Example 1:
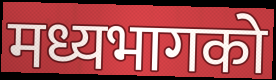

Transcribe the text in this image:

मध्यभागको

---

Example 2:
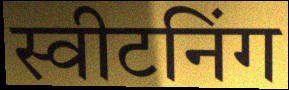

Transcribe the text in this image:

स्वीटनिंग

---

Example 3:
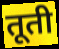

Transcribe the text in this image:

तूती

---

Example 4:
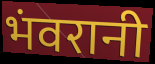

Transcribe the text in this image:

भंवरानी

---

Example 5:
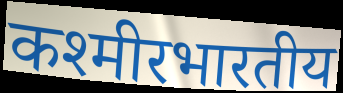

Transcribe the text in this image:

कश्मीरभारतीय